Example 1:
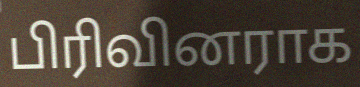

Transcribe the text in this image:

பிரிவினராக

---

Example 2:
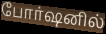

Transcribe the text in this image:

போர்ஷனில்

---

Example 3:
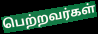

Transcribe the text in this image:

பெற்றவர்கள்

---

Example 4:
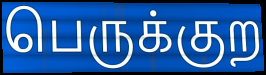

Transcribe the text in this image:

பெருக்குற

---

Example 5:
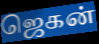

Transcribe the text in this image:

ஜெகன்